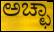
ಅಚ್ಛಾ